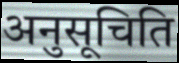
अनुसूचिति